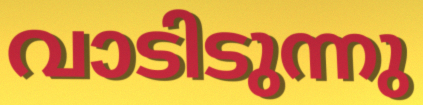
വാടിടുന്നു